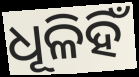
ଧୂଳିହିଁ